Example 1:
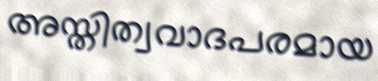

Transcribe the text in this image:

അസ്തിത്വവാദപരമായ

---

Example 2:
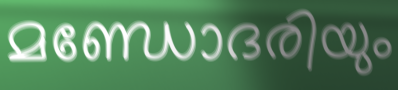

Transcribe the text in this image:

മണ്ഡോദരിയും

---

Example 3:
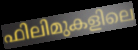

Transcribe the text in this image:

ഫിലിമുകളിലെ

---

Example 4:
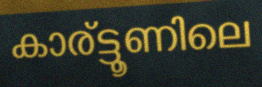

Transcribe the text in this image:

കാര്ട്ടൂണിലെ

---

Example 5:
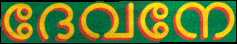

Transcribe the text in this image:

ദേവനേ